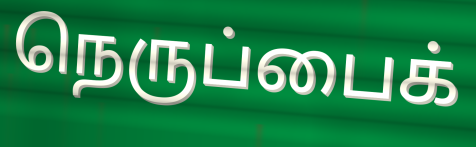
நெருப்பைக்